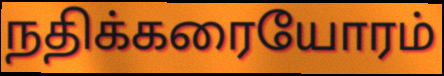
நதிக்கரையோரம்